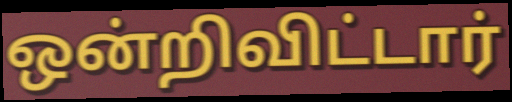
ஒன்றிவிட்டார்